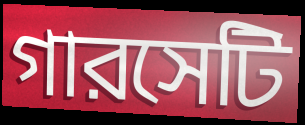
গারসেটি